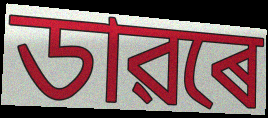
ডাৱৰে